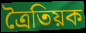
ত্ৰৈতিয়ক